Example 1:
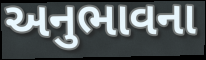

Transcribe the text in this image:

અનુભાવના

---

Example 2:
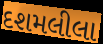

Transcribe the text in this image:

દશમલીલા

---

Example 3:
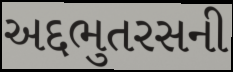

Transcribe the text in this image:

અદ્દભુતરસની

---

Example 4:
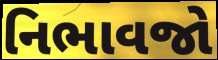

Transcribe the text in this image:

નિભાવજો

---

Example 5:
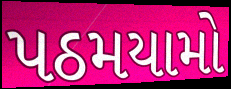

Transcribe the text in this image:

પઠમયામો